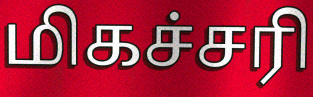
மிகச்சரி